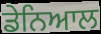
ਡੇਨਿਆਲ